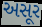
અસૂર